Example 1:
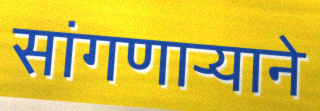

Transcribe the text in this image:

सांगणार्‍याने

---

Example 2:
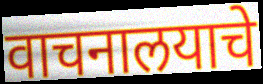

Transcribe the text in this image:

वाचनालयाचे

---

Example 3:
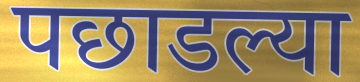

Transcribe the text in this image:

पछाडल्या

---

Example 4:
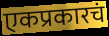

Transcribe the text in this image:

एकप्रकारचं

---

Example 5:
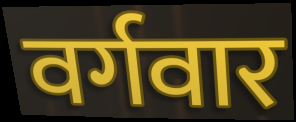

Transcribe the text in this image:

वर्गवार